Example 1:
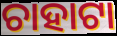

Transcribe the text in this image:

ଚାହାଟା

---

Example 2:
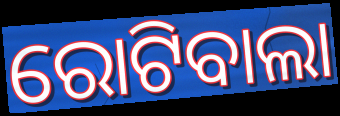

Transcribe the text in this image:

ରୋଟିବାଲା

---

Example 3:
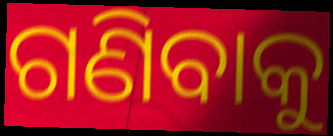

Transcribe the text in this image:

ଗଣିବାକୁ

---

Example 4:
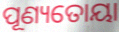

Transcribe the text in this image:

ପୂଣ୍ୟତୋୟା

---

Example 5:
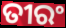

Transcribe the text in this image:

ତୀରଂ